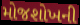
મોજશોખની